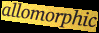
allomorphic